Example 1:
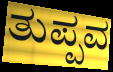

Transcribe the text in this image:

ತುಪ್ಪವ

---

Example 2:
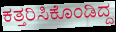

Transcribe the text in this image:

ಕತ್ತರಿಸಿಕೊಂಡಿದ್ದ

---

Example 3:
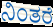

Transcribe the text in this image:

ನಿಂತರೆ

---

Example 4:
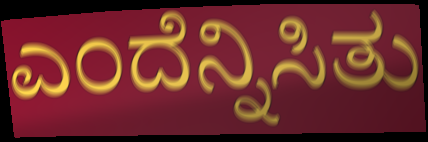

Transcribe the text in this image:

ಎಂದೆನ್ನಿಸಿತು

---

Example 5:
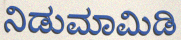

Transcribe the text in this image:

ನಿಡುಮಾಮಿಡಿ